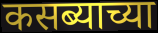
कसब्याच्या